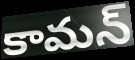
కామన్